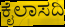
ಕೈಲಾಸದಿ